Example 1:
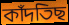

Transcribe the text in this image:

কাঁদতিছ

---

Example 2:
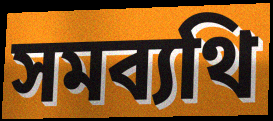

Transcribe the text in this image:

সমব্যথি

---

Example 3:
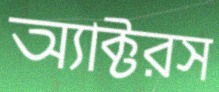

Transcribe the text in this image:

অ্যাক্টরস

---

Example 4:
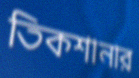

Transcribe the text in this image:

তিকশানার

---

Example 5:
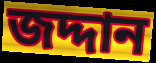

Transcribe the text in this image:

জদ্দান